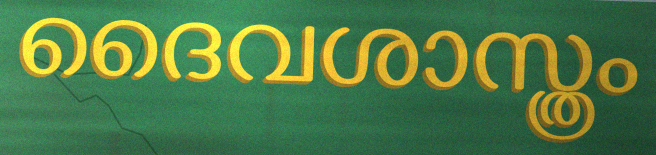
ദൈവശാസ്ത്രം